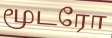
மூடரோ